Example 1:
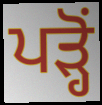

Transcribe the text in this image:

ਪੜ੍ਹੋਂ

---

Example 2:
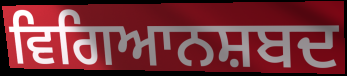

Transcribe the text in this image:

ਵਿਗਿਆਨਸ਼ਬਦ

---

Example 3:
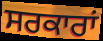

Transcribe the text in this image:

ਸਰਕਾਰਾਂ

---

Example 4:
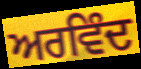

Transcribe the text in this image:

ਅਰਵਿੰਦ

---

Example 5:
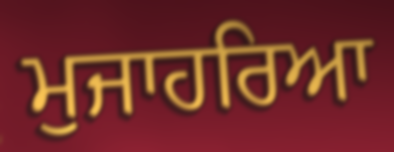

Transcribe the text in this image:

ਮੁਜਾਹਰਿਆ